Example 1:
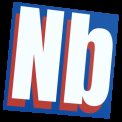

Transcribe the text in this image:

Nb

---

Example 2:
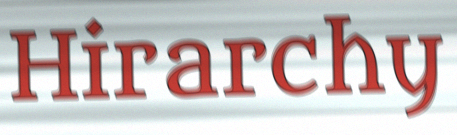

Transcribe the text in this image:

Hirarchy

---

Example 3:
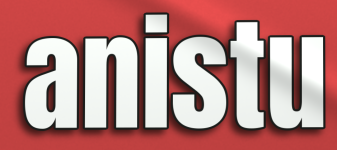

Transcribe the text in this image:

anistu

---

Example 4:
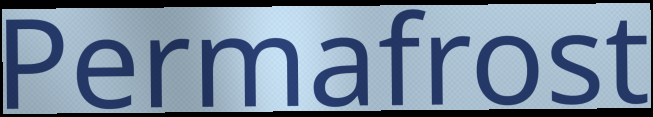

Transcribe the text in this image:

Permafrost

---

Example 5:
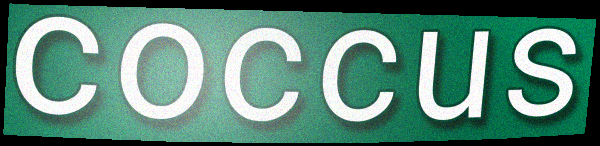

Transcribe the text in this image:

coccus